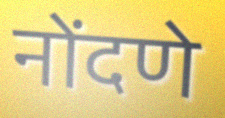
नोंदणे